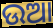
ଉଆ